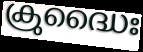
ക്രുദ്ധൈഃ